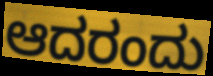
ಆದರಂದು